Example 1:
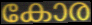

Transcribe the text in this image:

കോര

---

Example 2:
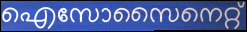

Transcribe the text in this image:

ഐസോസൈനെറ്റ്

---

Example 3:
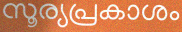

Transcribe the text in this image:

സൂര്യപ്രകാശം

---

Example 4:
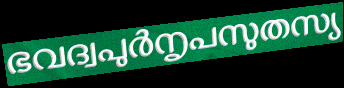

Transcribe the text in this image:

ഭവദ്വപുർനൃപസുതസ്യ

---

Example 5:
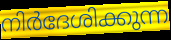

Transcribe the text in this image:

നിർദേശിക്കുന്ന